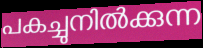
പകച്ചുനിൽക്കുന്ന